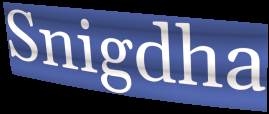
Snigdha